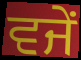
ਵਜੇਂ